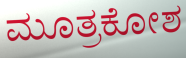
ಮೂತ್ರಕೋಶ